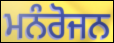
ਮਨੰਰੋਜਨ